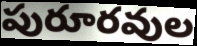
పురూరవుల